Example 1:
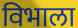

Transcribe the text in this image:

विभाला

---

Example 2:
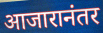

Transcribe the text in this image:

आजारानंतर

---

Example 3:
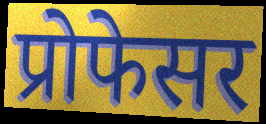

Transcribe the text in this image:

प्रोफेसर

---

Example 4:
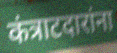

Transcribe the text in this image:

कंत्राटदारांना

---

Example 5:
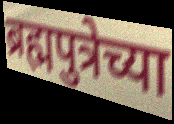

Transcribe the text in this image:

ब्रह्मपुत्रेच्या